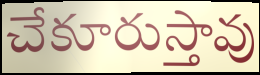
చేకూరుస్తావు